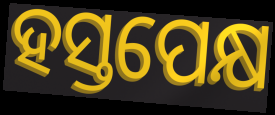
ହସ୍ତପେକ୍ଷ